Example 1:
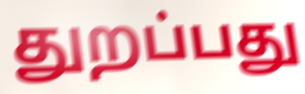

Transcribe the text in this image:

துறப்பது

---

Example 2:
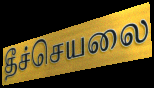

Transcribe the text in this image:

தீச்செயலை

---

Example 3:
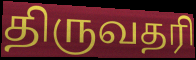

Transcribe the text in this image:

திருவதரி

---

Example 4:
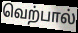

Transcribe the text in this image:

வெற்பால்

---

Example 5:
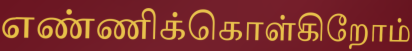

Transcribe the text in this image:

எண்ணிக்கொள்கிறோம்